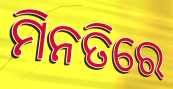
ମିନତିରେ